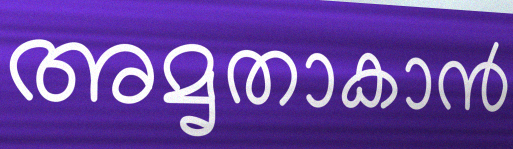
അമൃതാകാൻ